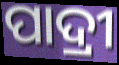
ପାଦ୍ରୀ